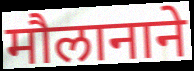
मौलानाने